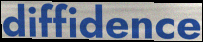
diffidence